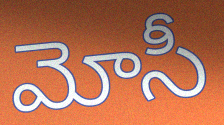
మోసీ